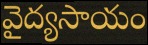
వైద్యసాయం